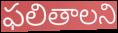
ఫలితాలని